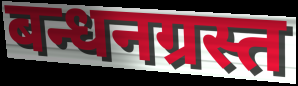
बन्धनग्रस्त